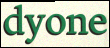
dyone